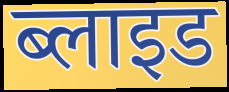
ब्लाइड